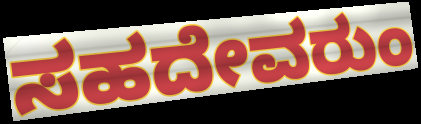
ಸಹದೇವರುಂ